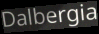
Dalbergia